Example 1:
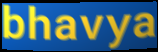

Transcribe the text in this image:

bhavya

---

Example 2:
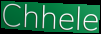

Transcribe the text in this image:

Chhele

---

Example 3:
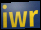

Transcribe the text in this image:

iwr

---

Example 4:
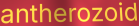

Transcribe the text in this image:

antherozoid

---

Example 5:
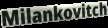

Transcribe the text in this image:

Milankovitch